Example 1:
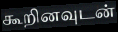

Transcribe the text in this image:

கூறினவுடன்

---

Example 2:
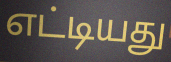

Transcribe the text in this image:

எட்டியது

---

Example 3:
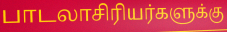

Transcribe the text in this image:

பாடலாசிரியர்களுக்கு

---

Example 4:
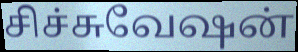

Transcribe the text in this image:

சிச்சுவேஷன்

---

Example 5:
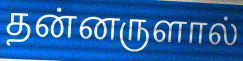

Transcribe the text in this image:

தன்னருளால்